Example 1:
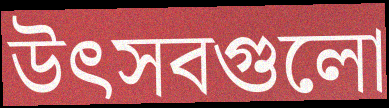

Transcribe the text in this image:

উৎসবগুলো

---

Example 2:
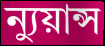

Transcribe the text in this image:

ন্যুয়ান্স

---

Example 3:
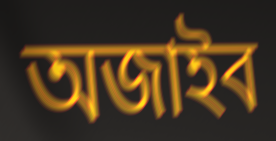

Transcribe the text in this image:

অজাইব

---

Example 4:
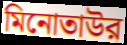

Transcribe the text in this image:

মিনোতাউর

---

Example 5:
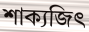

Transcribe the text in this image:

শাক্যজিৎ